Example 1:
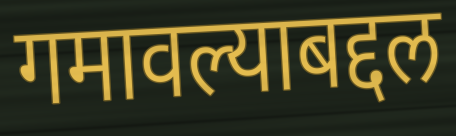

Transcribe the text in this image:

गमावल्याबद्दल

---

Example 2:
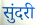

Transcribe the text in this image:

सुंदरी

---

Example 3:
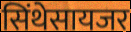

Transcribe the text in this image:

सिंथेसायजर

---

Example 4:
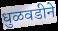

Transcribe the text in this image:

धुळवडीने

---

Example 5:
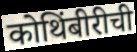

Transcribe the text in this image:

कोथिंबीरीची